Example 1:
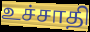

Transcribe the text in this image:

உச்சாதி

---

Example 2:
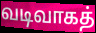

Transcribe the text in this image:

வடிவாகத்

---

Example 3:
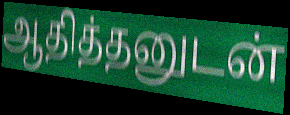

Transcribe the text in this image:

ஆதித்தனுடன்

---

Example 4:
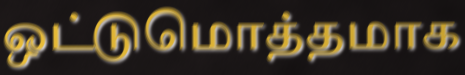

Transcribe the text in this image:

ஒட்டுமொத்தமாக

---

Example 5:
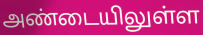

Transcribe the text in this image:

அண்டையிலுள்ள